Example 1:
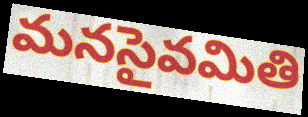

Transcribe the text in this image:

మనసైవమితి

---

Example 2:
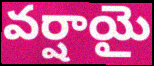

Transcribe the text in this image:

వర్షాయై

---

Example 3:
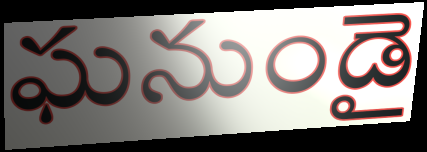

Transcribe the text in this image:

ఘనుండై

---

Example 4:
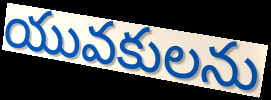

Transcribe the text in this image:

యువకులను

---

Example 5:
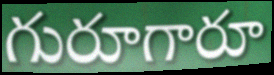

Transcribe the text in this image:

గురూగారూ